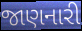
જાણનારી